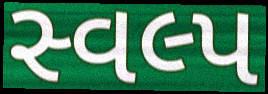
સ્વલ્પ